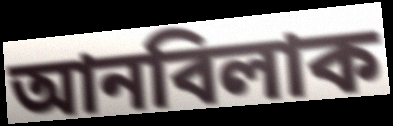
আনবিলাক